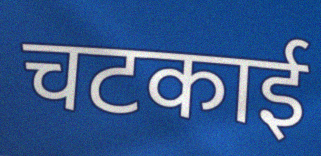
चटकाई